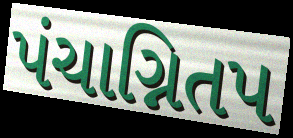
પંચાગ્નિતપ